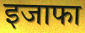
इजाफा